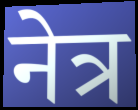
नेत्र